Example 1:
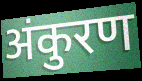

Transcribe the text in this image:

अंकुरण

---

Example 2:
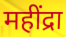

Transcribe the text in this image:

महींद्रा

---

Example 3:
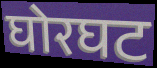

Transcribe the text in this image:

घोरघट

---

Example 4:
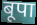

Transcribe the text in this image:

बूपा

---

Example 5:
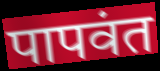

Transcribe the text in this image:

पापवंत